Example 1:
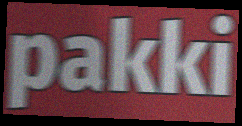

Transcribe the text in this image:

pakki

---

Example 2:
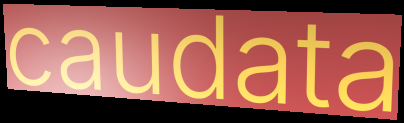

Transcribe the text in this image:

caudata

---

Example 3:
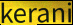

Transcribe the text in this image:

kerani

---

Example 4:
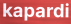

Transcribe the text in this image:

kapardi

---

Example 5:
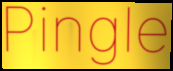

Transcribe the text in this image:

Pingle